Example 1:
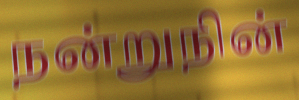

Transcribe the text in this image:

நன்றுநின்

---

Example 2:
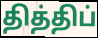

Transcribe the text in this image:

தித்திப்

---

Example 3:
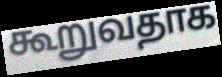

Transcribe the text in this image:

கூறுவதாக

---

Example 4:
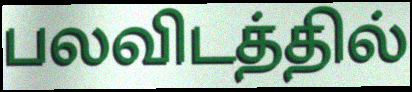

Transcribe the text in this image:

பலவிடத்தில்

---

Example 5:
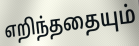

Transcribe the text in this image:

எறிந்ததையும்